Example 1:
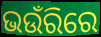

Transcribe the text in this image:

ଭଉଁରିରେ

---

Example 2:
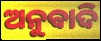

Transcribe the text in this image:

ଅନୁବାଦି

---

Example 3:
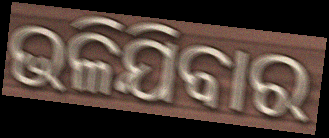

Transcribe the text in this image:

ଭଳିଯିବାର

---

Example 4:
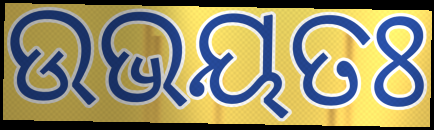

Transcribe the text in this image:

ଉଭୟତଃ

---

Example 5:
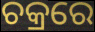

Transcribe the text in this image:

ଚକ୍ରରେ